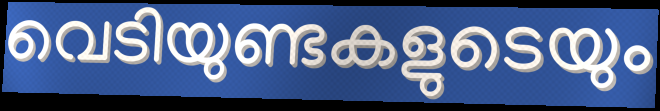
വെടിയുണ്ടകളുടെയും